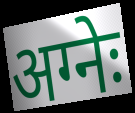
अग्नेः